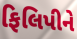
ફિલિપીને